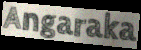
Angaraka